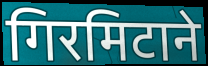
गिरमिटाने